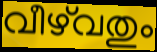
വീഴ്‌വതും